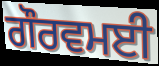
ਗੌਰਵਮਈ